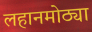
लहानमोठ्या